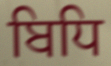
ਬਿਧਿ